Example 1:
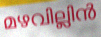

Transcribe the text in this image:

മഴവില്ലിൻ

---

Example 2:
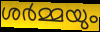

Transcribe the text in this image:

ശർമ്മയും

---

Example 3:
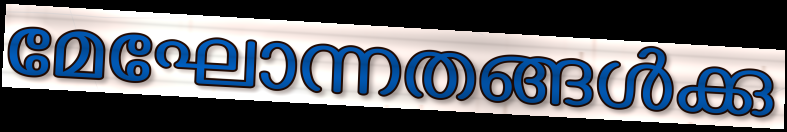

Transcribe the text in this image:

മേഘോന്നതങ്ങൾക്കു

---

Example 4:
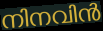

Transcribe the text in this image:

നിനവിൻ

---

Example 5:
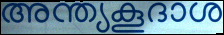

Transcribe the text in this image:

അന്ത്യകൂദാശ